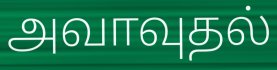
அவாவுதல்